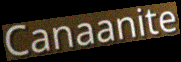
Canaanite